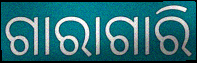
ଗାରାଗାରି